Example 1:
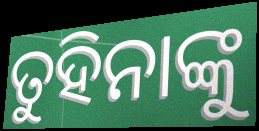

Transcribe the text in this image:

ତୁହିନାଙ୍କୁ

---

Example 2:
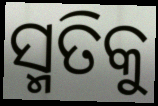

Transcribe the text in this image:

ସ୍ମତିକୁ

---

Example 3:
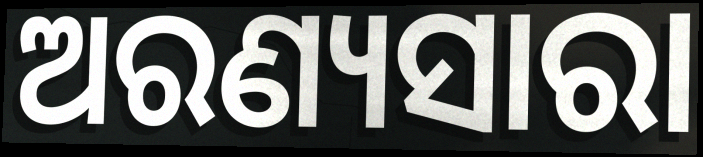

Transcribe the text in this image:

ଅରଣ୍ୟସାରା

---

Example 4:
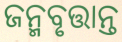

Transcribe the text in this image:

ଜନ୍ମବୃତ୍ତାନ୍ତ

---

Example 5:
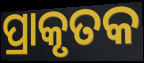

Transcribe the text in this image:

ପ୍ରାକୃତକ